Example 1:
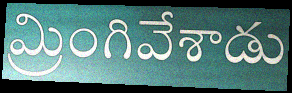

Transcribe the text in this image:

మ్రింగివేశాడు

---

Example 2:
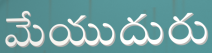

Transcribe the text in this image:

మేయుదురు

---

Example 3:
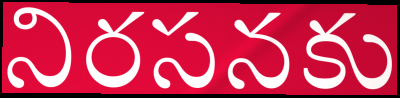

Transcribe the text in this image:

నిరసనకు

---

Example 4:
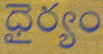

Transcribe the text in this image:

ధైర్యం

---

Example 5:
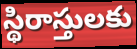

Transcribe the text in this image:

స్థిరాస్తులకు